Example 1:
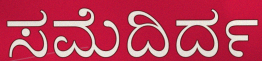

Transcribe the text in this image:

ಸಮೆದಿರ್ದ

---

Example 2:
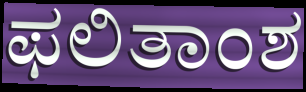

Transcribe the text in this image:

ಫಲಿತಾಂಶ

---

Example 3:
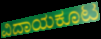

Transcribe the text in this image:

ವಿದಾಯಕೂಟ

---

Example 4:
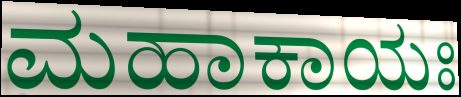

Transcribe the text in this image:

ಮಹಾಕಾಯಃ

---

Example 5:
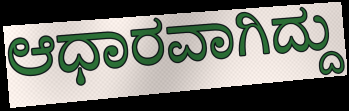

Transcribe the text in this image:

ಆಧಾರವಾಗಿದ್ದು